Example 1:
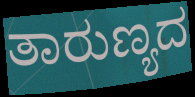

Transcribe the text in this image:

ತಾರುಣ್ಯದ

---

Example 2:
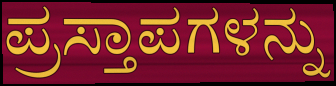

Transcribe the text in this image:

ಪ್ರಸ್ತಾಪಗಳನ್ನು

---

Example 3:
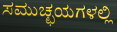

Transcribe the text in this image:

ಸಮುಚ್ಛಯಗಳಲ್ಲಿ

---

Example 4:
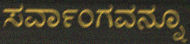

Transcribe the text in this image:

ಸರ್ವಾಂಗವನ್ನೂ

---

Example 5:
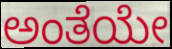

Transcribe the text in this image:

ಅಂತೆಯೇ